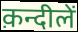
क़न्दीलें